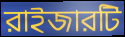
রাইজারটি